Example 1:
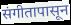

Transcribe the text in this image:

संगीतापासून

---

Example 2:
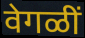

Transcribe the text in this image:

वेगळीं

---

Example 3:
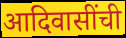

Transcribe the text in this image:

आदिवासींची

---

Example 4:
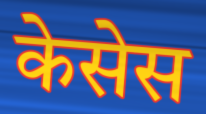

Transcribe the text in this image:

केसेस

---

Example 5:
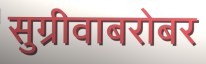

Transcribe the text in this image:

सुग्रीवाबरोबर